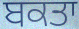
ਬਕਤਾ